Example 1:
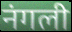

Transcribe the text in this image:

नंगली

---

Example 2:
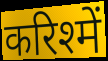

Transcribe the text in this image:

करिश्में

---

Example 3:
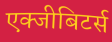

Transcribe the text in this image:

एक्जीबिटर्स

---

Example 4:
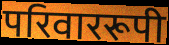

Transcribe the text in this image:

परिवाररूपी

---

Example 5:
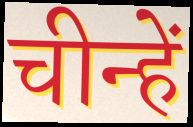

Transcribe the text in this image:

चीन्हें